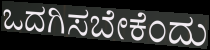
ಒದಗಿಸಬೇಕೆಂದು